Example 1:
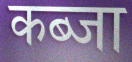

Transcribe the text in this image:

कब्जा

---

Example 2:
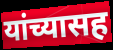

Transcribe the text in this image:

यांच्यासह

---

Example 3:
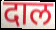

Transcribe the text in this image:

दाल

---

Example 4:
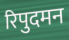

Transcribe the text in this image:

रिपुदमन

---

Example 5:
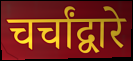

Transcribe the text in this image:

चर्चांद्वारे